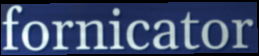
fornicator